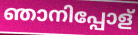
ഞാനിപ്പോള്